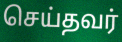
செய்தவர்